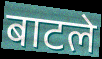
बाटले